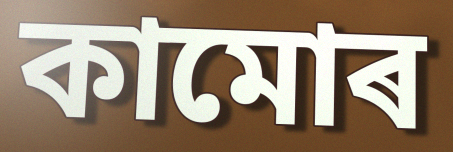
কামোৰ